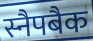
स्नैपबैक